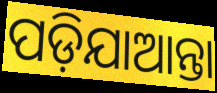
ପଡ଼ିଯାଆନ୍ତା